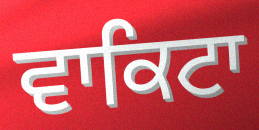
ਵਾਕਿਟਾ